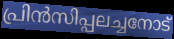
പ്രിൻസിപ്പലച്ചനോട്